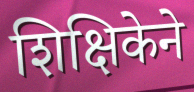
शिक्षिकेने